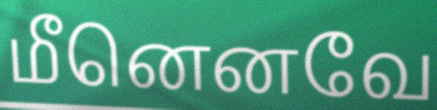
மீனெனவே